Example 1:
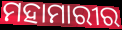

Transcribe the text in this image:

ମହାମାରୀର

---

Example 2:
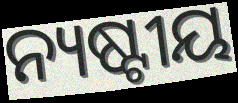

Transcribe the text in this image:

ନ୍ୟଷ୍ଟୀୟ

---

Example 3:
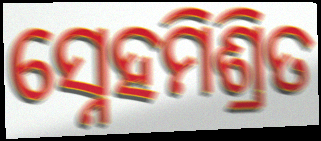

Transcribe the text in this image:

ସ୍ନେହମିଶ୍ରିତ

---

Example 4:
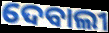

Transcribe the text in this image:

ଦେବାଲୀ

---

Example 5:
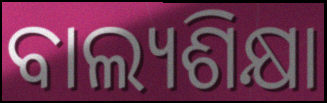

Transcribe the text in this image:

ବାଲ୍ୟଶିକ୍ଷା